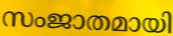
സംജാതമായി